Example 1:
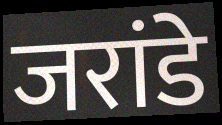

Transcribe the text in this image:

जरांडे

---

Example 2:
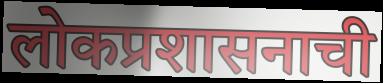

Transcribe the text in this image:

लोकप्रशासनाची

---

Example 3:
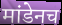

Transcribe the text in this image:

मांडेनच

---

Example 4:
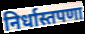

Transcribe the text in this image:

निर्धास्तपणा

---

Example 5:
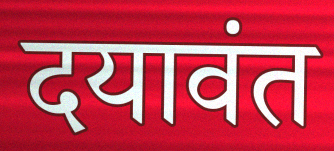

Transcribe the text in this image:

दयावंत